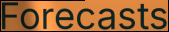
Forecasts